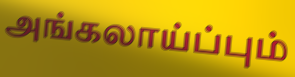
அங்கலாய்ப்பும்